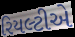
રિયલ્ટીએ